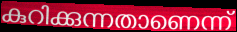
കുറിക്കുന്നതാണെന്ന്